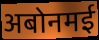
अबोनमई